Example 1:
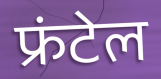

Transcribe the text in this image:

फ्रंटेल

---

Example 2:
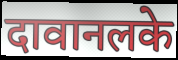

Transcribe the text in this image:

दावानलके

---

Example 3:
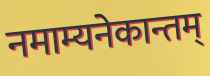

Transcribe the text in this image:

नमाम्यनेकान्तम्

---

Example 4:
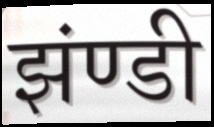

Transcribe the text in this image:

झंण्डी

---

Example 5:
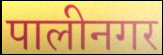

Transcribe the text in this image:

पालीनगर